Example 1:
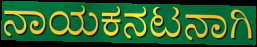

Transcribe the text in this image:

ನಾಯಕನಟನಾಗಿ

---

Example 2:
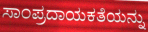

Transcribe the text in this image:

ಸಾಂಪ್ರದಾಯಕತೆಯನ್ನು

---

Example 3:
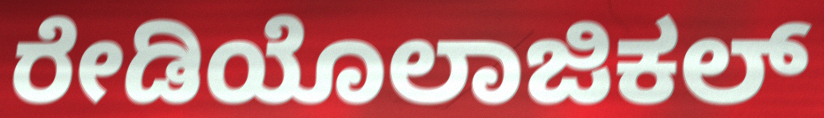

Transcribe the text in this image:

ರೇಡಿಯೊಲಾಜಿಕಲ್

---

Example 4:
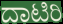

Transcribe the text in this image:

ದಾಟಿರಿ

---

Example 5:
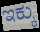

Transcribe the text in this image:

ಇಕ್ಕು